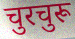
चुरचुरू